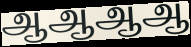
ஆஆஆஆ